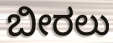
ಬೀರಲು